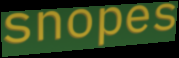
snopes